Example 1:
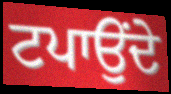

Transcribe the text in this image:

ਟਪਾਉਂਦੇ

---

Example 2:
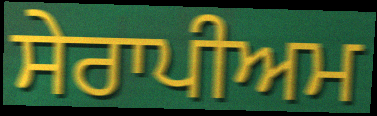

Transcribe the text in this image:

ਸੇਰਾਪੀਅਮ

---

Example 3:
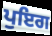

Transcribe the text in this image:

ਪੁਇਗ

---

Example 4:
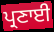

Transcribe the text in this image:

ਪ੍ਰਣਾਈ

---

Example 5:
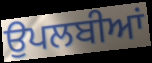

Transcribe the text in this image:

ਉਪਲਬੀਆਂ